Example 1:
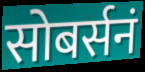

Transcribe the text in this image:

सोबर्सनं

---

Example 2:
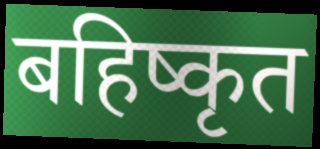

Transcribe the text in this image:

बहिष्कृत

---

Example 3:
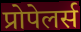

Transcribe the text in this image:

प्रोपेलर्स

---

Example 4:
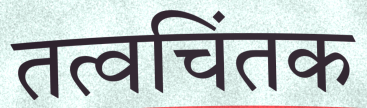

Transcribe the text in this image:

तत्वचिंतक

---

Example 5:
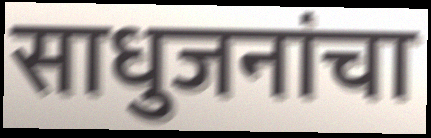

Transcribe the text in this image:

साधुजनांचा